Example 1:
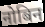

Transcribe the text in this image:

नोबिन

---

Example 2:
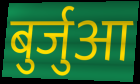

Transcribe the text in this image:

बुर्जुआ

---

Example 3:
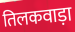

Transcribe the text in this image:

तिलकवाड़ा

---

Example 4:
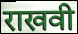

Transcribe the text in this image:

राखवी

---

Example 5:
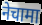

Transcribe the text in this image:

नेचामा